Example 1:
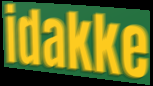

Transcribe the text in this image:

idakke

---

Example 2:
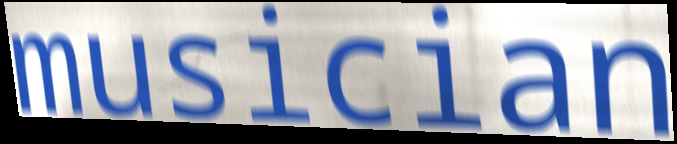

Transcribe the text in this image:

musician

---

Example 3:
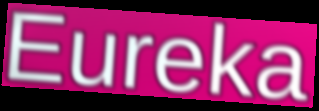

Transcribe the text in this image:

Eureka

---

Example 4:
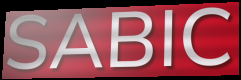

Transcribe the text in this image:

SABIC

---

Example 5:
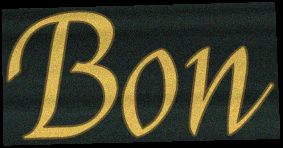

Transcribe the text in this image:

Bon